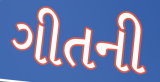
ગીતની